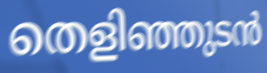
തെളിഞ്ഞുടൻ